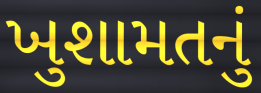
ખુશામતનું